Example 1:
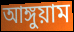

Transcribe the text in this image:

আঙ্গুয়াম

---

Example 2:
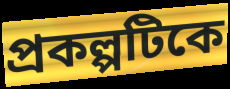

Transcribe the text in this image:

প্রকল্পটিকে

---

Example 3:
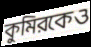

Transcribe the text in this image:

কুমিরকেও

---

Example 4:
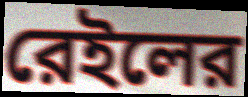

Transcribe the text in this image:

রেইলের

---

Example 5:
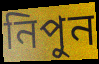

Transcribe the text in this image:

নিপুন